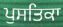
ਪੁਸਤਿਕਾ